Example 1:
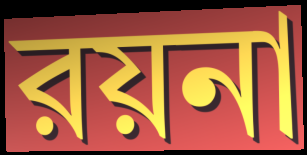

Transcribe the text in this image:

রয়না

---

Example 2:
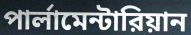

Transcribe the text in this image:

পার্লামেন্টারিয়ান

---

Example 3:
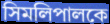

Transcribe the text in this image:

সিমলিপালকে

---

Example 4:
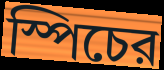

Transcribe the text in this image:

স্পিচের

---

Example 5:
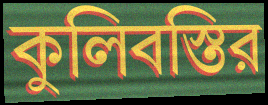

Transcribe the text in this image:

কুলিবস্তির